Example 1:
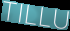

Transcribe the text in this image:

TILLU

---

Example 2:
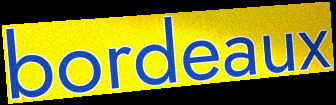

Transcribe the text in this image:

bordeaux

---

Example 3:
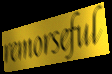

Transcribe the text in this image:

remorseful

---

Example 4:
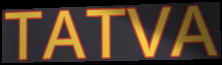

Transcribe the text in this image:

TATVA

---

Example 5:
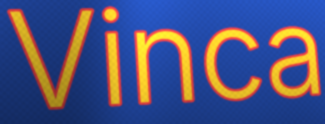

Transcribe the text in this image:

Vinca